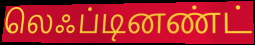
லெஃப்டினண்ட்